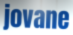
jovane